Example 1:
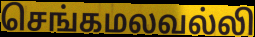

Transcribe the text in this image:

செங்கமலவல்லி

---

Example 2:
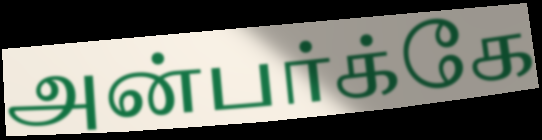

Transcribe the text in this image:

அன்பர்க்கே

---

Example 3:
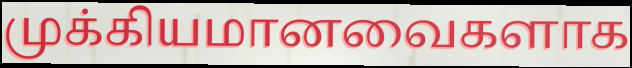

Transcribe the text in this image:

முக்கியமானவைகளாக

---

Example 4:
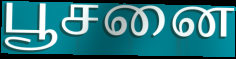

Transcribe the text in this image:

பூசனை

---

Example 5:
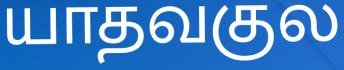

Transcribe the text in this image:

யாதவகுல